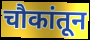
चौकांतून